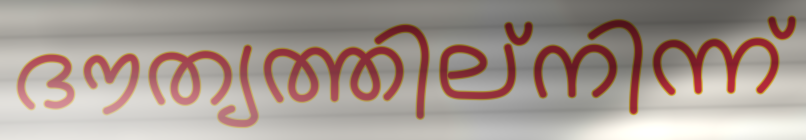
ദൗത്യത്തില്നിന്ന്